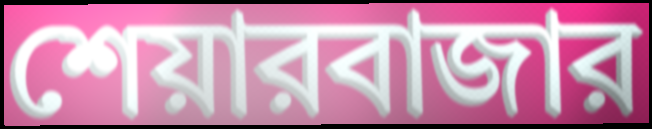
শেয়ারবাজার